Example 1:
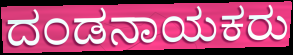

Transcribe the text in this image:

ದಂಡನಾಯಕರು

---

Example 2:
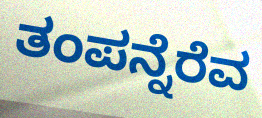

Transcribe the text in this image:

ತಂಪನ್ನೆರೆವ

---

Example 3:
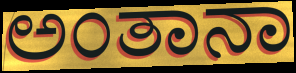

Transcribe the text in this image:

ಅಂತಾನಾ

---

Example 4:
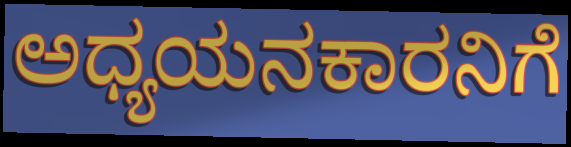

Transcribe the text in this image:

ಅಧ್ಯಯನಕಾರನಿಗೆ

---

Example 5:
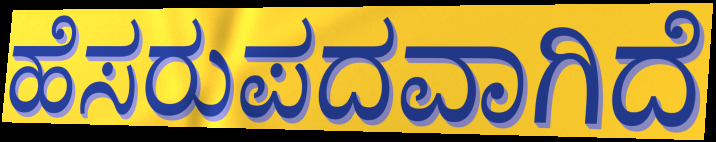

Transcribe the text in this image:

ಹೆಸರುಪದವಾಗಿದೆ